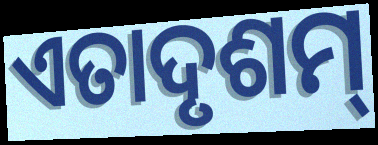
ଏତାଦୃଶମ୍